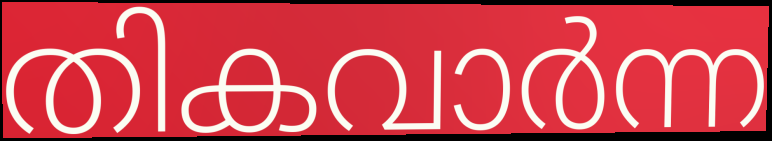
തികവാർന്ന